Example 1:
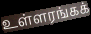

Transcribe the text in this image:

உள்ளரங்கக்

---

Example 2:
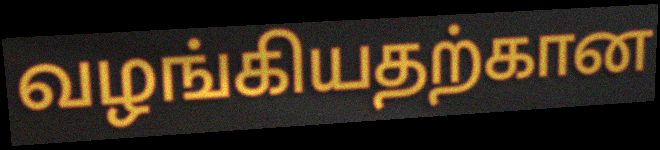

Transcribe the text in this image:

வழங்கியதற்கான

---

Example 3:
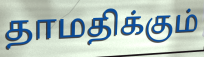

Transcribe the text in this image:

தாமதிக்கும்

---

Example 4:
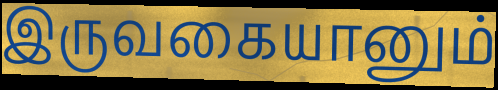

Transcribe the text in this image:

இருவகையானும்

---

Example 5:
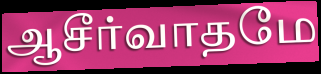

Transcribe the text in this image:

ஆசீர்வாதமே